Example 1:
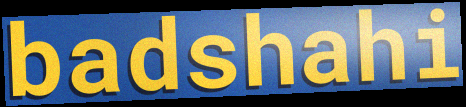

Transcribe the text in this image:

badshahi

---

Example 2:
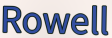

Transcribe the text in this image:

Rowell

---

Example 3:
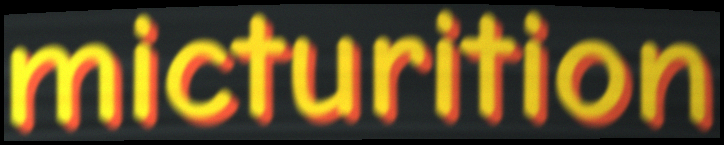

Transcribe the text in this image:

micturition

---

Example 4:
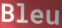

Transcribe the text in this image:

Bleu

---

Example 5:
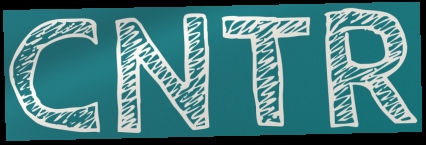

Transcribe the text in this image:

CNTR